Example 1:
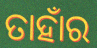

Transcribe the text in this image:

ତାହାଁର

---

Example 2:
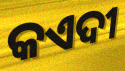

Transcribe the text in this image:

କଏଦୀ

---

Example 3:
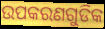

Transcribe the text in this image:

ଉପକରଣଗୁଡିକ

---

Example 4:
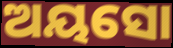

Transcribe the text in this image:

ଅୟସୋ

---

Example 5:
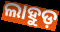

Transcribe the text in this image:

ଲାହୁଡ଼